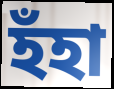
হঁহা